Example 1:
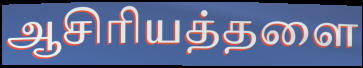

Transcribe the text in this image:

ஆசிரியத்தளை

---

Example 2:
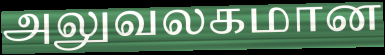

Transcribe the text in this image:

அலுவலகமான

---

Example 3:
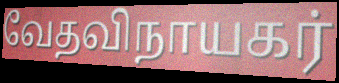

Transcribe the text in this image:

வேதவிநாயகர்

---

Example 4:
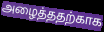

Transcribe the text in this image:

அழைத்ததற்காக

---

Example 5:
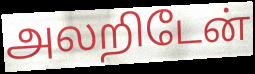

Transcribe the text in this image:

அலறிடேன்